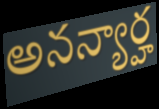
అనన్యార్హ